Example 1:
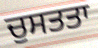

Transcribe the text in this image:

ਚੁਸਤਤਾ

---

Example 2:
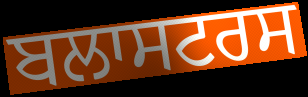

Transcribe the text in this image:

ਬਲਾਸਟਰਸ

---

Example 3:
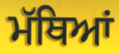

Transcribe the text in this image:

ਮੱਥਿਆਂ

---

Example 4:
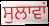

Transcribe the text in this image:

ਸੁਲਾਵਾਂ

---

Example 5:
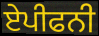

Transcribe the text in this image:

ਏਪੀਫਨੀ